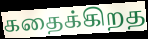
கதைக்கிறத